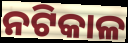
ନଟିକାଳ